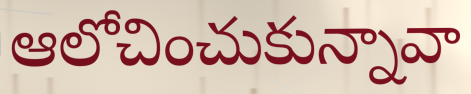
ఆలోచించుకున్నావా